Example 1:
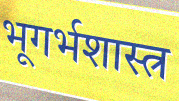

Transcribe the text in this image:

भूगर्भशास्त्र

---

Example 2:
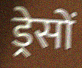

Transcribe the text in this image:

ड्रेसों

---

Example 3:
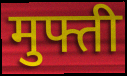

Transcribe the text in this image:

मुफ्ती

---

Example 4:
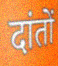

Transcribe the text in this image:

दांतों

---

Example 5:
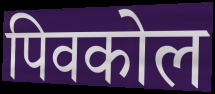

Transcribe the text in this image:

पिवकोल